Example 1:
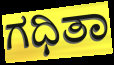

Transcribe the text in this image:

ಗಧಿತಾ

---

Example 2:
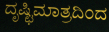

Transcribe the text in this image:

ದೃಷ್ಟಿಮಾತ್ರದಿಂದ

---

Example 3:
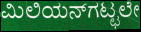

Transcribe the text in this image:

ಮಿಲಿಯನ್‌ಗಟ್ಟಲೇ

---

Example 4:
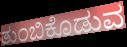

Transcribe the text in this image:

ತುಂಬಿಕೊಡುವ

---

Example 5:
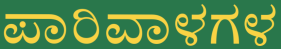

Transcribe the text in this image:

ಪಾರಿವಾಳಗಳ